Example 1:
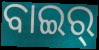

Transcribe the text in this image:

ବାଇର୍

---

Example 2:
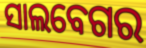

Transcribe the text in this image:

ସାଲବେଗର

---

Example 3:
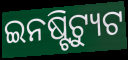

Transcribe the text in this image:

ଇନଷ୍ଟିଟ୍ୟୁଟ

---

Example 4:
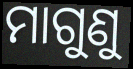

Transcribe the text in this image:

ମାଗୁଣୁ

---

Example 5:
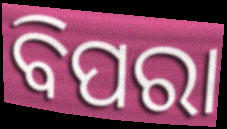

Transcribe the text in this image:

ବିପରା